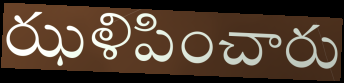
ఝళిపించారు